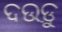
ଦଉଡ଼ୁ